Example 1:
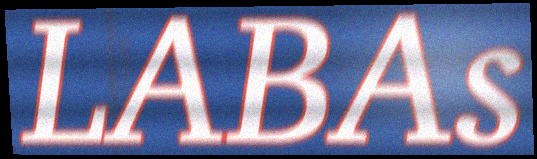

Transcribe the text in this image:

LABAs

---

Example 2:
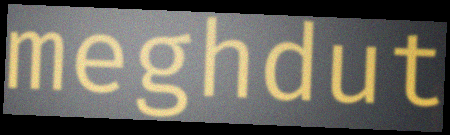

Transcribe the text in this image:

meghdut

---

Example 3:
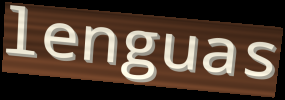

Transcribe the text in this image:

lenguas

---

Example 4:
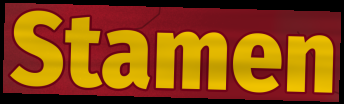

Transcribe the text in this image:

Stamen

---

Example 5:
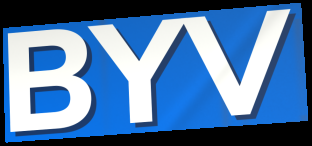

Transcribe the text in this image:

BYV